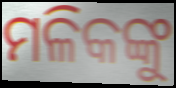
ମଳିକଙ୍କୁ